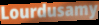
Lourdusamy